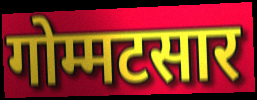
गोम्मटसार